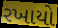
રખાયો